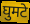
घुमटे